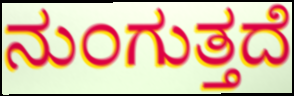
ನುಂಗುತ್ತದೆ